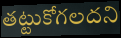
తట్టుకోగలదని